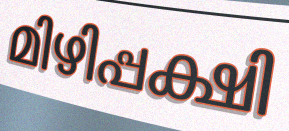
മിഴിപ്പക്ഷി